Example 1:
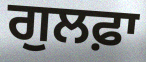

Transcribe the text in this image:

ਗੁਲਫ਼ਾ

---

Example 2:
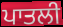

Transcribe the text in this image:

ਪਾਤਲੀ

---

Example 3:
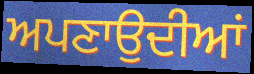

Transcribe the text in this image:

ਅਪਣਾਉਦੀਆਂ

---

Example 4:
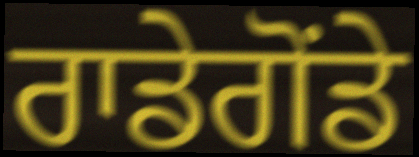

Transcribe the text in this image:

ਰਾਡੇਗੋਂਡੇ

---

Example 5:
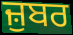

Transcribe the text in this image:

ਜ਼ੁਬਰ